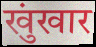
खुंखार